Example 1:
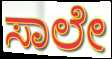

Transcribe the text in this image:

ಸಾಲೇ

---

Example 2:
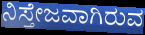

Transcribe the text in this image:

ನಿಸ್ತೇಜವಾಗಿರುವ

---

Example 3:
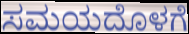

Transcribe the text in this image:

ಸಮಯದೊಳಗೆ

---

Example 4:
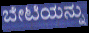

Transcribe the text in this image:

ಬೇಟೆಯನ್ನು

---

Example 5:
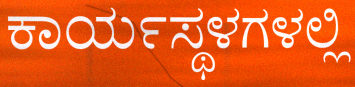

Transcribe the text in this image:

ಕಾರ್ಯಸ್ಥಳಗಳಲ್ಲಿ